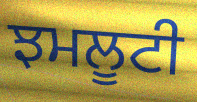
ਝਮਲੂਟੀ